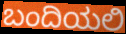
ಬಂದಿಯಲಿ